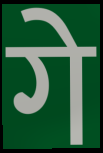
गे